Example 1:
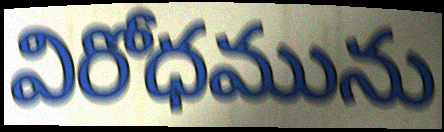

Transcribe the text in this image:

విరోధమును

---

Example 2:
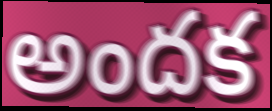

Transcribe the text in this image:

అందక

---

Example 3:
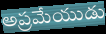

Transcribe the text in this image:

అప్రమేయుడు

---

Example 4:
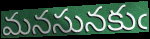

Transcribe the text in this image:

మనసునకుఁ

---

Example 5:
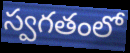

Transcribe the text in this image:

స్వగతంలో